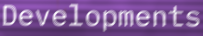
Developments